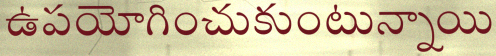
ఉపయోగించుకుంటున్నాయి